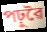
পঢ়ুৱৈ